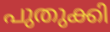
പുതുക്കി